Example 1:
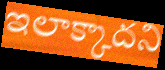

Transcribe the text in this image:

ఇలాక్కాదని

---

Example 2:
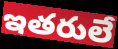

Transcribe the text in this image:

ఇతరులే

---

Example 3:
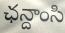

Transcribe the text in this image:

ఛన్దాంసి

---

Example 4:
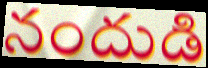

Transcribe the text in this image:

నందుడి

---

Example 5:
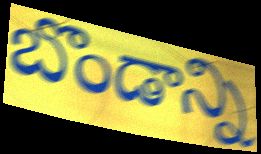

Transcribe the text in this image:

బొండాన్ని